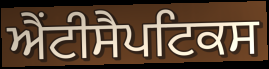
ਐਂਟੀਸੈਪਟਿਕਸ